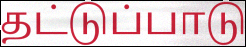
தட்டுப்பாடு